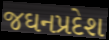
જઘનપ્રદેશ